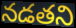
నడతని